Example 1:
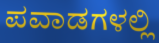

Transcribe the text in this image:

ಪವಾಡಗಳಲ್ಲಿ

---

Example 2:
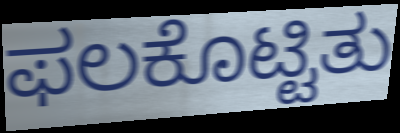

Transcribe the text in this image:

ಫಲಕೊಟ್ಟಿತು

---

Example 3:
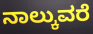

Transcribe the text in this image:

ನಾಲ್ಕುವರೆ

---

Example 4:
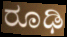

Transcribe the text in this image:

ರೂಢಿ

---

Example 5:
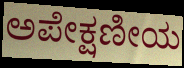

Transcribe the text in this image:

ಅಪೇಕ್ಷಣೀಯ